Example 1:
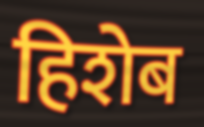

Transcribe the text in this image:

हिशेब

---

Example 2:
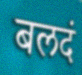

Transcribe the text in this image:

बलदं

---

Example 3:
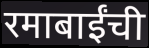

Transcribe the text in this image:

रमाबाईंची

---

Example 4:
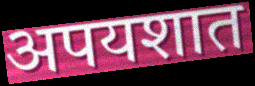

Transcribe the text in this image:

अपयशात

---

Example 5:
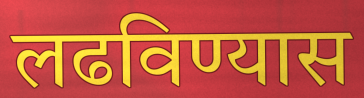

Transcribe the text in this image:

लढविण्यास